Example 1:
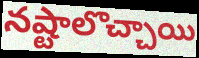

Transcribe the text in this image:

నష్టాలొచ్చాయి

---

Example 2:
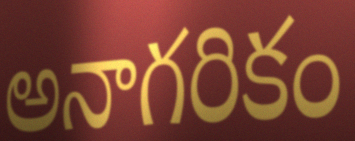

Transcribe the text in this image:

అనాగరికం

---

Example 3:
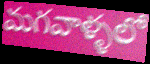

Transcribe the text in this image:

మగవాళ్ళలో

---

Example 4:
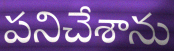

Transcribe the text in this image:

పనిచేశాను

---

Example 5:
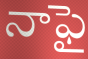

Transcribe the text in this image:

నాఫై